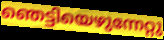
ഞെട്ടിയെഴുന്നേറ്റു